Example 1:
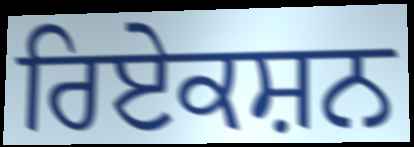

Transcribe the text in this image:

ਰਿਏਕਸ਼ਨ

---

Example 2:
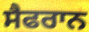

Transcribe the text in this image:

ਸੈਫਰਾਨ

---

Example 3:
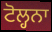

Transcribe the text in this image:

ਟੋਲ੍ਹਨਾ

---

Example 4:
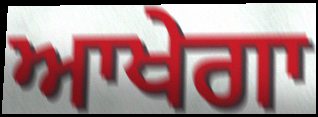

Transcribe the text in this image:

ਆਖੇਗਾ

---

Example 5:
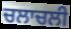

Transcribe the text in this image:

ਚਲਾਚਲੀ